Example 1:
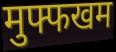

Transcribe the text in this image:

मुफ्फखम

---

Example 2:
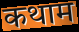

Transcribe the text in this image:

कथाम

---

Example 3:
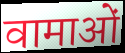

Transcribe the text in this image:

वामाओं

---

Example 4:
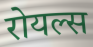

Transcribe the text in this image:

रोयल्स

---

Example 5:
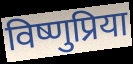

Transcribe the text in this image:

विष्णुप्रिया